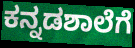
ಕನ್ನಡಶಾಲೆಗೆ